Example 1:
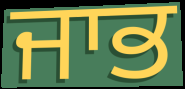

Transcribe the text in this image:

ਜਾਭ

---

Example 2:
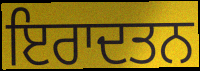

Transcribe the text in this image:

ਇਰਾਦਤਨ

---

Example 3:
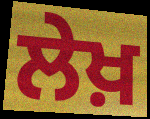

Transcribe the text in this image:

ਲੇਖ਼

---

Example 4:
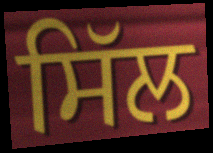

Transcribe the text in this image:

ਸਿੱਲ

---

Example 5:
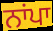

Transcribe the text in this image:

ਨਾਂਪਾ